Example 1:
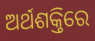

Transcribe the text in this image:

ଅର୍ଥଶକ୍ତିରେ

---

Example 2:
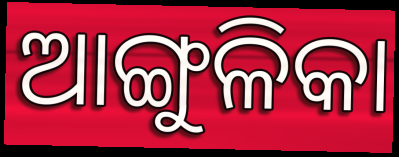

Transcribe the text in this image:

ଆଙ୍ଗୁଳିକା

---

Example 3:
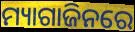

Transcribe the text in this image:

ମ୍ୟାଗାଜିନରେ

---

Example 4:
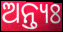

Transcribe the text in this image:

ଅନ୍ତ୍ୟଃ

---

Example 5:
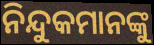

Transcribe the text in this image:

ନିନ୍ଦୁକମାନଙ୍କୁ